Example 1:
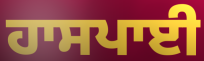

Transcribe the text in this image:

ਹਾਸਪਾਈ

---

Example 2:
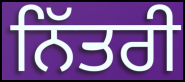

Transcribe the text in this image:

ਨਿੱਤਰੀ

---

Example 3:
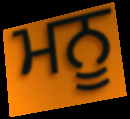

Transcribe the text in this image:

ਮਨੂ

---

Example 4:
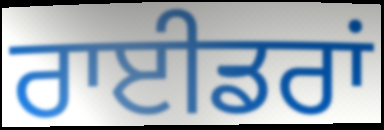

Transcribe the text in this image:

ਰਾਈਡਰਾਂ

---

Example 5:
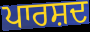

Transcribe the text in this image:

ਪਾਰਸ਼ਦ